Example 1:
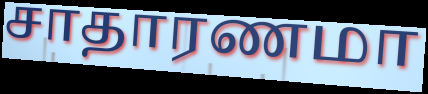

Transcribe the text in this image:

சாதாரணமா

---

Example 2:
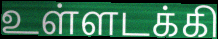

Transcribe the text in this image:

உள்ளடக்கி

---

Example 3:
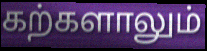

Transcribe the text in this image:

கற்களாலும்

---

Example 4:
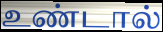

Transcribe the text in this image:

உண்டால்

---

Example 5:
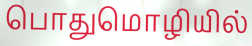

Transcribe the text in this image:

பொதுமொழியில்